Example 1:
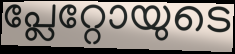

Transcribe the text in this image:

പ്ലേറ്റോയുടെ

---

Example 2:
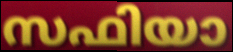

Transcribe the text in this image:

സഫിയാ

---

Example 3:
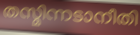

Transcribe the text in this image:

തസ്മിന്നടാനീതി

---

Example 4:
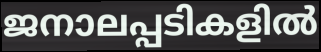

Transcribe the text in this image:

ജനാലപ്പടികളിൽ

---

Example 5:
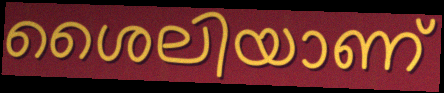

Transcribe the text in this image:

ശൈലിയാണ്